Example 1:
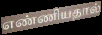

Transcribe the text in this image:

எண்ணியதால்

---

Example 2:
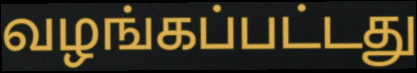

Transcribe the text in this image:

வழங்கப்பட்டது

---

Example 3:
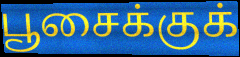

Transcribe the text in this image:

பூசைக்குக்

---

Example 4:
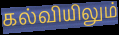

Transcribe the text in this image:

கல்வியிலும்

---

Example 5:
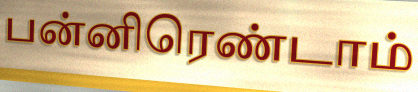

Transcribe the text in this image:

பன்னிரெண்டாம்